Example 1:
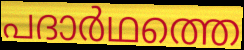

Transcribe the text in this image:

പദാർഥത്തെ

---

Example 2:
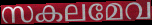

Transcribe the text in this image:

സകലമേവ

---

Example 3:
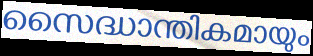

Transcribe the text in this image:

സൈദ്ധാന്തികമായും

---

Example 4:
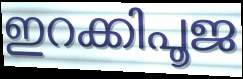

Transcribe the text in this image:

ഇറക്കിപൂജ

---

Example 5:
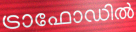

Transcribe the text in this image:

ട്രാഫോഡിൽ